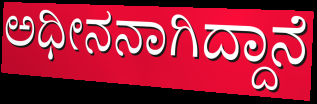
ಅಧೀನನಾಗಿದ್ದಾನೆ